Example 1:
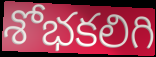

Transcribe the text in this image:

శోభకలిగి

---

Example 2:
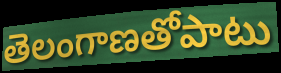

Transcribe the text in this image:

తెలంగాణతోపాటు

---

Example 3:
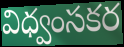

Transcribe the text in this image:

విధ్వంసకర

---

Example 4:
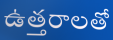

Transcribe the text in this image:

ఉత్తరాలతో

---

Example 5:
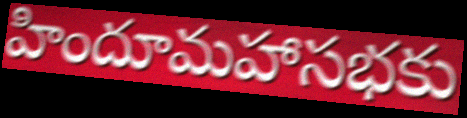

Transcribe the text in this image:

హిందూమహాసభకు